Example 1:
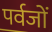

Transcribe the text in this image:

पर्वजों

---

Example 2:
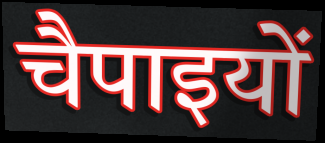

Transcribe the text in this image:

चैपाइयों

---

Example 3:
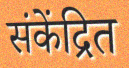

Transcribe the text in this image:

संकेंद्रित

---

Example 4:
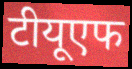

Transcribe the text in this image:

टीयूएफ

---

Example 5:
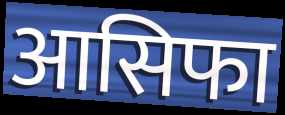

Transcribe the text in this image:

आसिफा